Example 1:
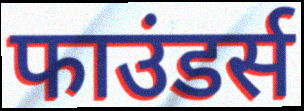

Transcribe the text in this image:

फाउंडर्स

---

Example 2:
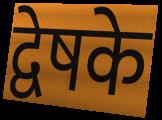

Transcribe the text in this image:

द्वेषके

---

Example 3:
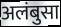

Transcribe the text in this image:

अलंबुसा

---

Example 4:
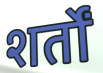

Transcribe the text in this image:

शर्तों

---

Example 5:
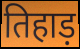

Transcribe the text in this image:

तिहाड़